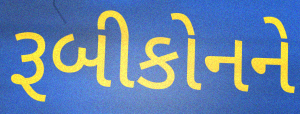
રૂબીકોનને